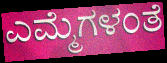
ಎಮ್ಮೆಗಳಂತೆ